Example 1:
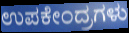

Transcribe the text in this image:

ಉಪಕೇಂದ್ರಗಳು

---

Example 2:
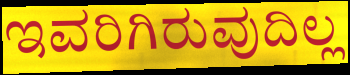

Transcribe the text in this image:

ಇವರಿಗಿರುವುದಿಲ್ಲ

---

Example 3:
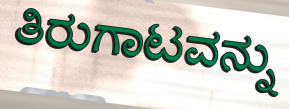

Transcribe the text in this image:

ತಿರುಗಾಟವನ್ನು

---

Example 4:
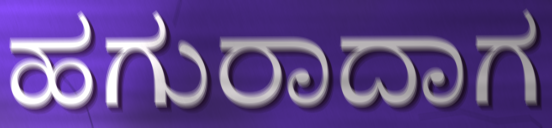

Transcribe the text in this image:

ಹಗುರಾದಾಗ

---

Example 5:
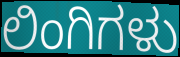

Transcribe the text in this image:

ಲಿಂಗಿಗಳು